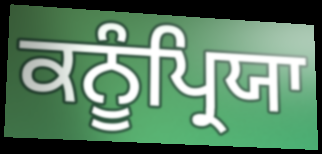
ਕਨੂੰਪ੍ਰਿਯਾ